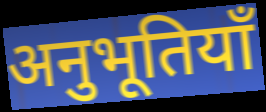
अनुभूतियाँ